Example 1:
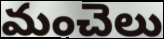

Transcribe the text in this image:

మంచెలు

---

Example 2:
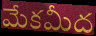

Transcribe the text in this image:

మేకమీద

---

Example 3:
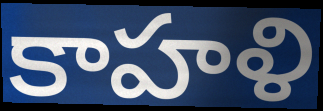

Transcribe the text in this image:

కాహళి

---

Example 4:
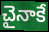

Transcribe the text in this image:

చైనాకే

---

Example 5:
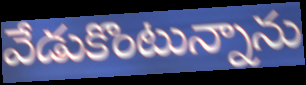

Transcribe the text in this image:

వేడుకొంటున్నాను